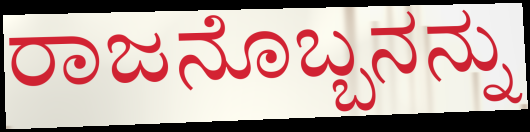
ರಾಜನೊಬ್ಬನನ್ನು